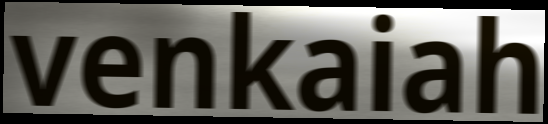
venkaiah